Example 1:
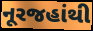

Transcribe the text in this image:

નૂરજહાંથી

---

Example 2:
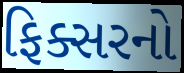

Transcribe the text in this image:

ફિક્સરનો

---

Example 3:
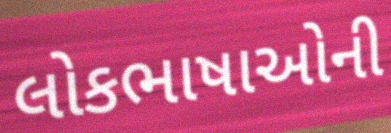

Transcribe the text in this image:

લોકભાષાઓની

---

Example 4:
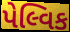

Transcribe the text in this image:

પેલ્વિક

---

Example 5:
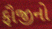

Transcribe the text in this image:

ફૌજીનો